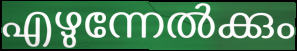
എഴുന്നേൽക്കും